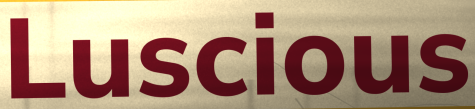
Luscious